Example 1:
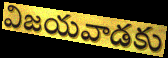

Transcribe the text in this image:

విజయవాడకు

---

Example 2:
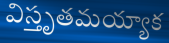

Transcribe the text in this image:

విస్తృతమయ్యాక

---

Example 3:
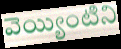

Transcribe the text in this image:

వెయ్యింటిని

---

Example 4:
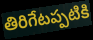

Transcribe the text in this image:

తిరిగేటప్పటికి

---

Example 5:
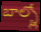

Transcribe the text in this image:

బాల్స్లో